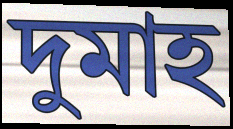
দুমাহ